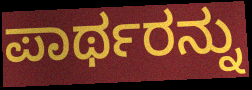
ಪಾರ್ಥರನ್ನು